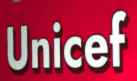
Unicef